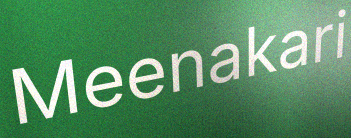
Meenakari